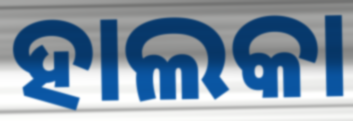
ହାଲକା